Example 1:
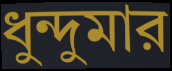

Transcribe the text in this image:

ধুন্দুমার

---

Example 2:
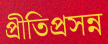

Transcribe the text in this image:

প্রীতিপ্রসন্ন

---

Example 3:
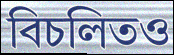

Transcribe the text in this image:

বিচলিতও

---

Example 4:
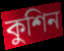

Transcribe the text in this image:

কুশিন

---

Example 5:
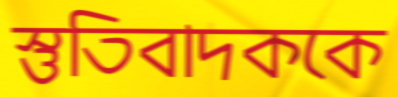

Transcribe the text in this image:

স্তুতিবাদককে